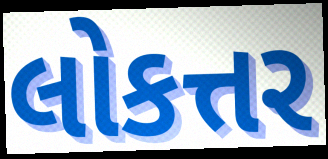
લોકત્તર